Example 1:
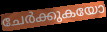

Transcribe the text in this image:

ചേർക്കുകയോ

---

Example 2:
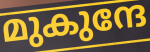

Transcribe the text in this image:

മുകുന്ദേ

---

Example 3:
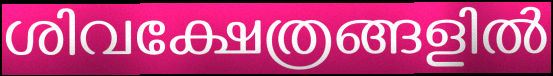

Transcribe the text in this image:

ശിവക്ഷേത്രങ്ങളിൽ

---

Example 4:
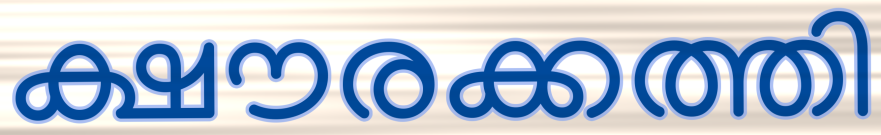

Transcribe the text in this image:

ക്ഷൗരക്കത്തി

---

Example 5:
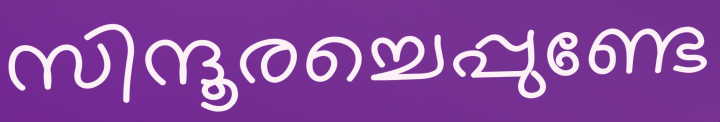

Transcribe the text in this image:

സിന്ദൂരച്ചെപ്പുണ്ടേ